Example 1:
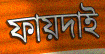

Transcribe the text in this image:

ফায়দাই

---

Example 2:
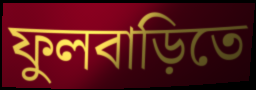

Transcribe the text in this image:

ফুলবাড়িতে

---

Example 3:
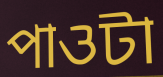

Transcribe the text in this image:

পাওটা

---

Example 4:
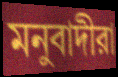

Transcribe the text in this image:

মনুবাদীরা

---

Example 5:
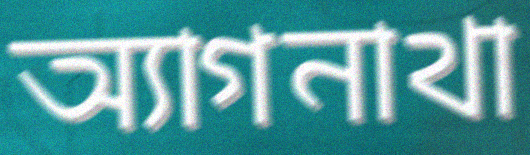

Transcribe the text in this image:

অ্যাগনাথা